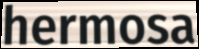
hermosa